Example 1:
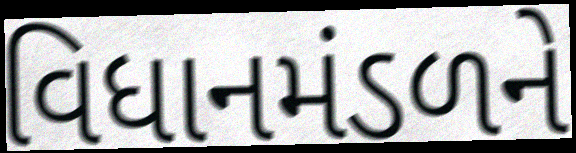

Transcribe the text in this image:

વિધાનમંડળને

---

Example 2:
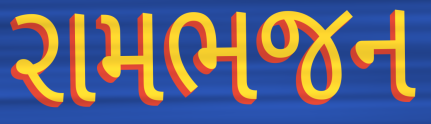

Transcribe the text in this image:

રામભજન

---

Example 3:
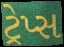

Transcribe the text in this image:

ટ્રેપ્સ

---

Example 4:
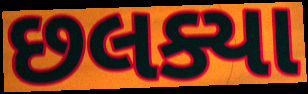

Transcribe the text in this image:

છલક્યા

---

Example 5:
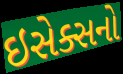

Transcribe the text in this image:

ઇસેક્સનો